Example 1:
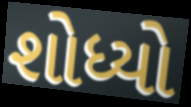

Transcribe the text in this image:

શોધ્યો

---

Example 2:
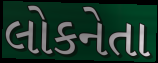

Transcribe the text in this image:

લોકનેતા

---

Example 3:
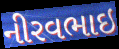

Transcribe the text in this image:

નીરવભાઇ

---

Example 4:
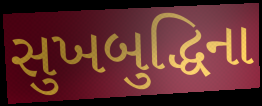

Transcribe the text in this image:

સુખબુદ્ધિના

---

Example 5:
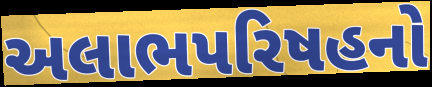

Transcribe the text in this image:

અલાભપરિષહનો